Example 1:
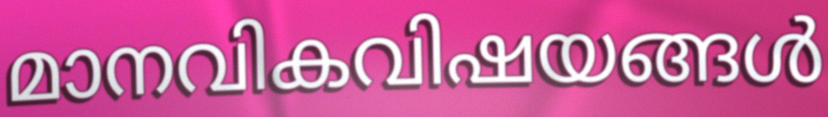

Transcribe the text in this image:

മാനവികവിഷയങ്ങൾ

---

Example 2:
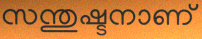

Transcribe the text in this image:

സന്തുഷ്ടനാണ്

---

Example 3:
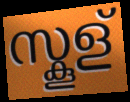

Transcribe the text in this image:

സ്കൂള്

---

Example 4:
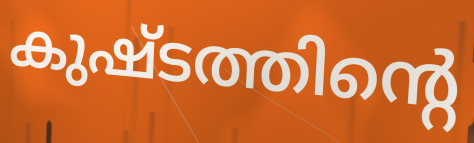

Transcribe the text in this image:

കുഷ്ടത്തിന്റെ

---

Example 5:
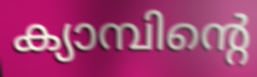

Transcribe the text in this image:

ക്യാമ്പിന്റെ